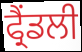
ਫ੍ਰੈਂਡਲੀ